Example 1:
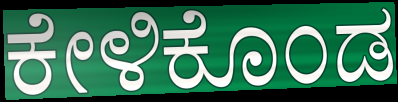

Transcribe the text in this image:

ಕೇಳಿಕೊಂಡ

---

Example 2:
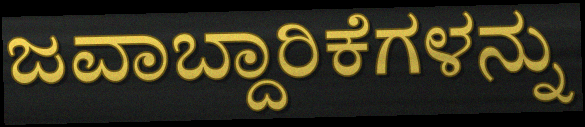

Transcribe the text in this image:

ಜವಾಬ್ದಾರಿಕೆಗಳನ್ನು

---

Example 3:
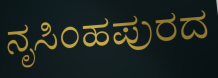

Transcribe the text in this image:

ನೃಸಿಂಹಪುರದ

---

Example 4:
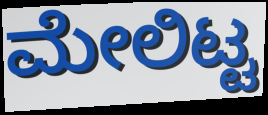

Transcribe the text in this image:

ಮೇಲಿಟ್ಟ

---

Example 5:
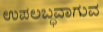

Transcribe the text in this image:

ಉಪಲಬ್ಧವಾಗುವ